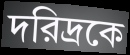
দরিদ্রকে